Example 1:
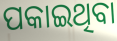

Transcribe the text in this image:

ପକାଇଥିବା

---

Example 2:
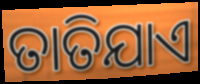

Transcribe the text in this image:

ତାତିଯାଏ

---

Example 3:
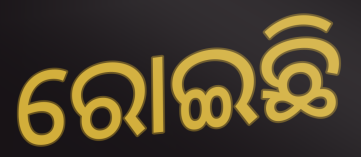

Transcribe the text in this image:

ରୋଇଛି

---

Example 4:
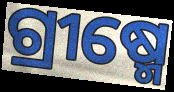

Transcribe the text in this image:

ଗ୍ରୀଷ୍ମେ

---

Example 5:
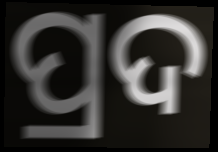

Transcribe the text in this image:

ପ୍ରଦ